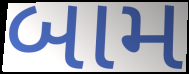
બામ